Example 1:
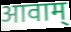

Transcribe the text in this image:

आवाम्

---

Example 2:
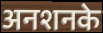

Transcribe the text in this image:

अनशनके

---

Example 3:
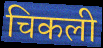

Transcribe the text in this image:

चिकली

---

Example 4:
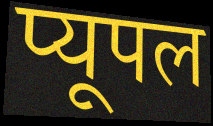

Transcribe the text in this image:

प्यूपल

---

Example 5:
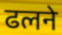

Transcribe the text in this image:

ढलने